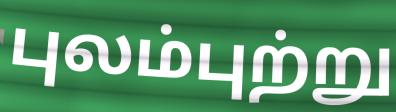
புலம்புற்று